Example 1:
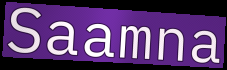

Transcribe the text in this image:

Saamna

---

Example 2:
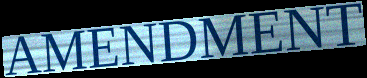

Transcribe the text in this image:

AMENDMENT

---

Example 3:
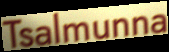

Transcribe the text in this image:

Tsalmunna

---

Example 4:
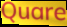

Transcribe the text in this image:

Quare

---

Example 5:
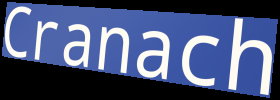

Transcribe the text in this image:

Cranach